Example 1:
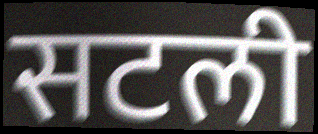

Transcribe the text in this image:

सटली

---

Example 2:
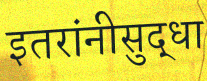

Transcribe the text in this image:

इतरांनीसुद्धा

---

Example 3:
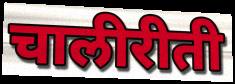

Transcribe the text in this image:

चालीरीती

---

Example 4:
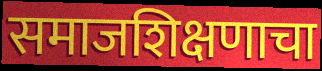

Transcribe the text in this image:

समाजशिक्षणाचा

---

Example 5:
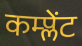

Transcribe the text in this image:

कम्प्लेंट